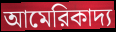
আমেরিকাদ্য